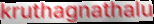
kruthagnathalu